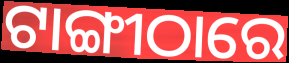
ଟାଙ୍ଗୀଠାରେ